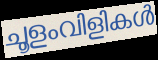
ചൂളംവിളികൾ